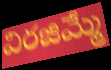
విరజిమ్మే